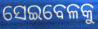
ସେଇବେଳକୁ